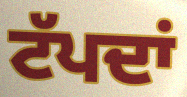
ਟੱਪਦਾਂ